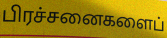
பிரச்சனைகளைப்